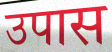
उपास